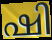
ഷി